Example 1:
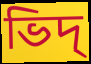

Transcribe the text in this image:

ভিদ্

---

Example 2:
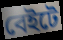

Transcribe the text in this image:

বেইটে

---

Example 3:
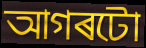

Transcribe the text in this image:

আগৰটো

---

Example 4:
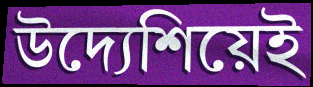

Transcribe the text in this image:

উদ্যেশিয়েই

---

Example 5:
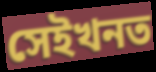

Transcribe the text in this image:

সেইখনত